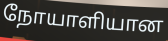
நோயாளியான